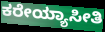
ಕರೇಯ್ಯಾಸೀತಿ